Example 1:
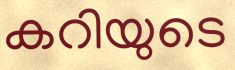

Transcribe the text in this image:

കറിയുടെ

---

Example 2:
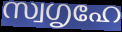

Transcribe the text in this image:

സ്വഗൃഹേ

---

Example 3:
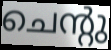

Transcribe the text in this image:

ചെന്റു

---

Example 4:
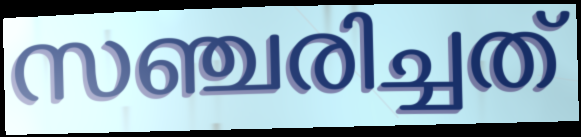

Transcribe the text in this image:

സഞ്ചരിച്ചത്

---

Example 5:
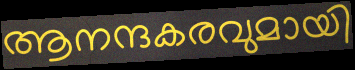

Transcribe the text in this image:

ആനന്ദകരവുമായി